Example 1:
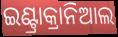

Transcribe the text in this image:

ଇଣ୍ଟ୍ରାକ୍ରାନିଆଲ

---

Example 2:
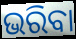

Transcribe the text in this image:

ଭରିବା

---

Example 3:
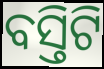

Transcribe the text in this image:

ବସ୍ତିଟି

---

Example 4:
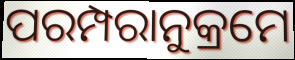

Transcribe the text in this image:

ପରମ୍ପରାନୁକ୍ରମେ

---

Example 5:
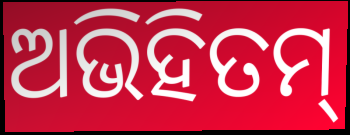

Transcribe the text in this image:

ଅଭିହିତମ୍